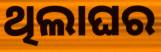
ଥିଲାଘର